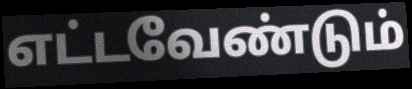
எட்டவேண்டும்